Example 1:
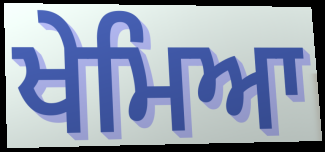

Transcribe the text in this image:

ਖੇਮਿਆ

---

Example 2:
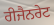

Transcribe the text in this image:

ਰੀਜੈਨਰੇਟ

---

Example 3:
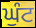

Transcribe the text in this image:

ਘੁੰਟ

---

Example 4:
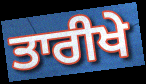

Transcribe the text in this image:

ਤਾਰੀਖੇ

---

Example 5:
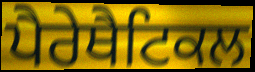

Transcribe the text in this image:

ਪੈਰੇਥੈਟਿਕਲ